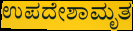
ಉಪದೇಶಾಮೃತ